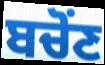
ਬਚੋਂਣ